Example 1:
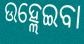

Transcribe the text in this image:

ଉହ୍ଲେଇବା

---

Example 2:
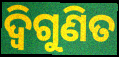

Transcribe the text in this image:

ଦ୍ୱିଗୁଣିତ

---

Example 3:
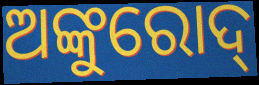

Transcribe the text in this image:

ଅଙ୍କୁରୋଦ୍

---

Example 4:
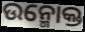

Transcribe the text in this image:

ଉନ୍ମୋକ୍ତ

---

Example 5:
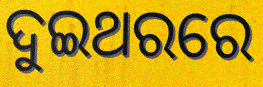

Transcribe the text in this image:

ଦୁଇଥରରେ